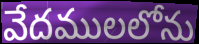
వేదములలోను